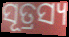
ସୂତ୍ରସ୍ୟ